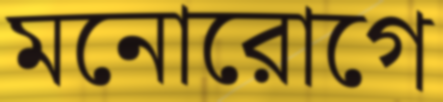
মনোরোগে